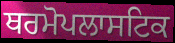
ਥਰਮੋਪਲਾਸਟਿਕ